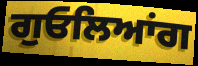
ਗੁਓਲਿਆਂਗ